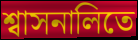
শ্বাসনালিতে